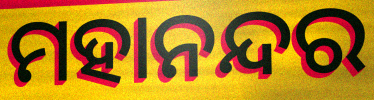
ମହାନନ୍ଦର